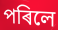
পৰিলে